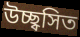
উচ্ছ্বসিত